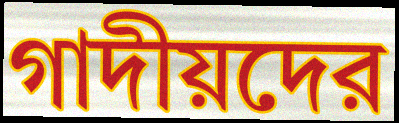
গাদীয়দের